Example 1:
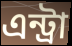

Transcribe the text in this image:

এন্ট্রা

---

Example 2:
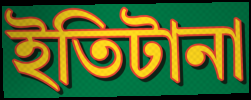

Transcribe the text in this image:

ইতিটানা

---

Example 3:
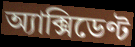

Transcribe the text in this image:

অ্যাক্সিডেণ্ট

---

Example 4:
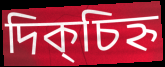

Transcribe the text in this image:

দিক্‌চিহ্ন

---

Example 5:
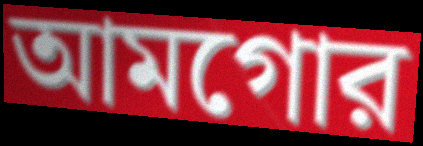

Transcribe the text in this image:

আমগোর